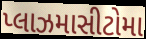
પ્લાઝમાસીટોમા